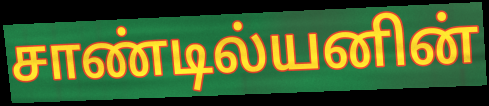
சாண்டில்யனின்